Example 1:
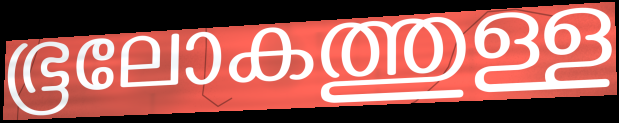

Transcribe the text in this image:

ഭൂലോകത്തുള്ള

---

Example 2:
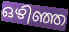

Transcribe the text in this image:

ഒഴിഞ്ഞ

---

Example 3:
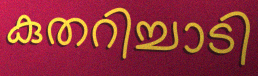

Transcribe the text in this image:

കുതറിച്ചാടി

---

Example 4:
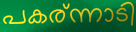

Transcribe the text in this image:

പകര്ന്നാടി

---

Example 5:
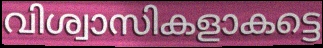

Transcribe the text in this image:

വിശ്വാസികളാകട്ടെ